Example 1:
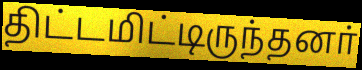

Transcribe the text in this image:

திட்டமிட்டிருந்தனர்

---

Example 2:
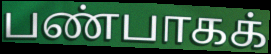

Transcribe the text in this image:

பண்பாகக்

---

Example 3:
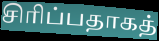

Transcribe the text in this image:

சிரிப்பதாகத்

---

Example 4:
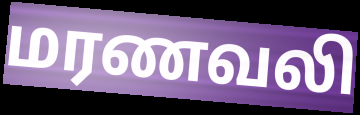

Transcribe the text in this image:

மரணவலி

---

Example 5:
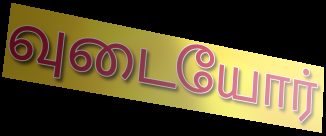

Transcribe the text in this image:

வுடையோர்